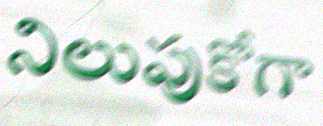
నిలుపుకోగా